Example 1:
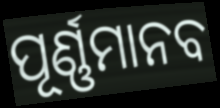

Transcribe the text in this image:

ପୂର୍ଣ୍ଣମାନବ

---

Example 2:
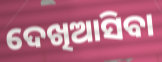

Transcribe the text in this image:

ଦେଖିଆସିବା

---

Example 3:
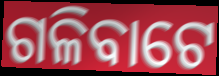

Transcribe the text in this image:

ଗଳିବାଟେ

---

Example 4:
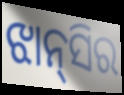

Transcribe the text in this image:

ଝାନ୍‌ସିର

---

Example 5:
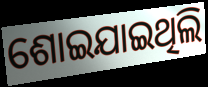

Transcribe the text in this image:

ଶୋଇଯାଇଥିଲି